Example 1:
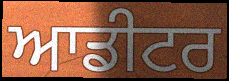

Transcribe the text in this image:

ਆਡੀਟਰ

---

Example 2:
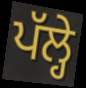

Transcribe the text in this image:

ਪੱਲ੍ਹੇ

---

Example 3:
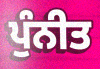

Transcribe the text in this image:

ਪੁੰਨੀਤ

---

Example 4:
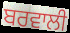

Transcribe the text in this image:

ਬਰਵਾਲੀ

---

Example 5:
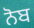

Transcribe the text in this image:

ਨੋਬ